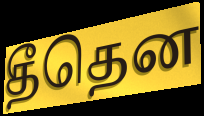
தீதென